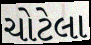
ચોટેલા